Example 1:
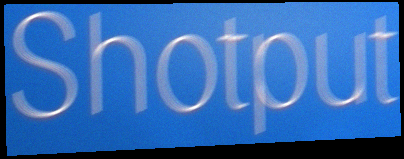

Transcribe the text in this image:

Shotput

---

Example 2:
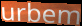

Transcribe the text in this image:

urbem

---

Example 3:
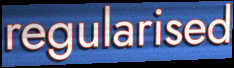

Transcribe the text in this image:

regularised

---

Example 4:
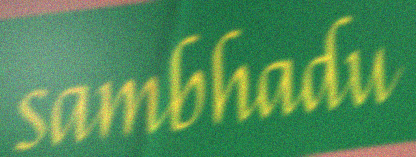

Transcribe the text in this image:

sambhadu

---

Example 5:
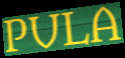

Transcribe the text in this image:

PULA